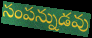
సంపన్నుడవు